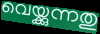
വെയ്ക്കുന്നതു